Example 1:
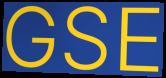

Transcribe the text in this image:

GSE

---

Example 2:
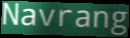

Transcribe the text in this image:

Navrang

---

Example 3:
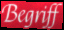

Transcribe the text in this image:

Begriff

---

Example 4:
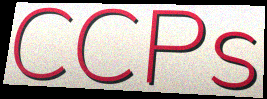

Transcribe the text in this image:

CCPs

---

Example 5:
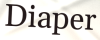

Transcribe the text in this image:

Diaper